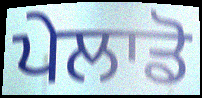
ਪੇਲਾਡੋ